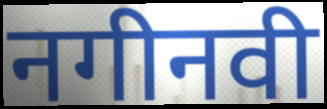
नगीनवी